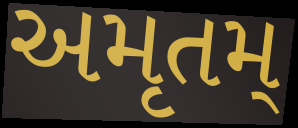
અમૃતમ્